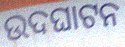
ଉଦଘାଟନ